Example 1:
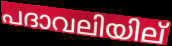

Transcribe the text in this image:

പദാവലിയില്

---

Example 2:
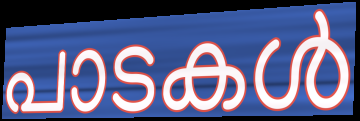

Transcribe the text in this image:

പാടകൾ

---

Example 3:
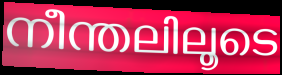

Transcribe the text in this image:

നീന്തലിലൂടെ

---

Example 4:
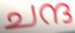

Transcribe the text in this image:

ചന്ദ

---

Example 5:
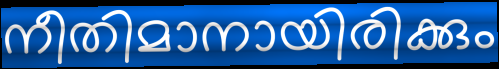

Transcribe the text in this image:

നീതിമാനായിരിക്കും